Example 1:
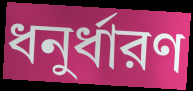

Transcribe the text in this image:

ধনুর্ধারণ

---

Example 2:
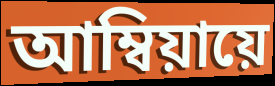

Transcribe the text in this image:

আম্বিয়ায়ে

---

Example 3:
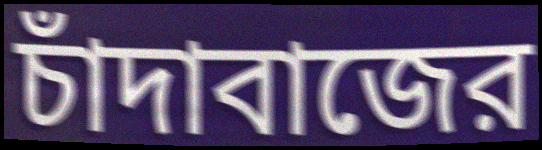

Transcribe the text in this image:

চাঁদাবাজের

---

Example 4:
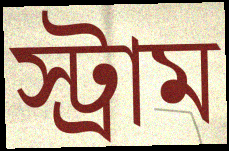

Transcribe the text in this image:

স্ট্রাম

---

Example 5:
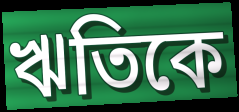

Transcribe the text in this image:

ঋতিকে